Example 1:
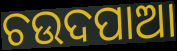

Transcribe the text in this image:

ଚଉଦପାଆ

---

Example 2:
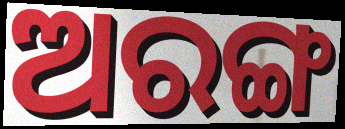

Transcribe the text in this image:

ଅରଙ୍ଗ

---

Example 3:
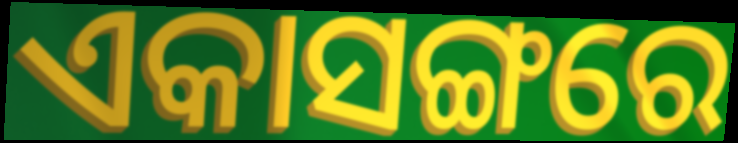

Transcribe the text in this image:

ଏକାସଙ୍ଗରେ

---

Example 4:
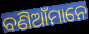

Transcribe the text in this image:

ବଣିଆଁମାନେ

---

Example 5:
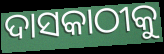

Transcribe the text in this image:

ଦାସକାଠୀକୁ